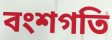
বংশগতি